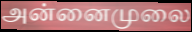
அன்னைமுலை